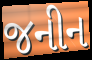
જનીન